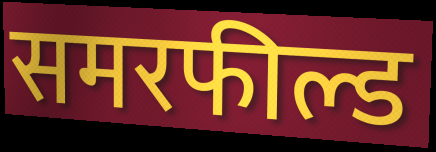
समरफील्ड